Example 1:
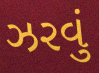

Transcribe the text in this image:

ઝરવું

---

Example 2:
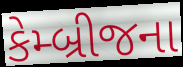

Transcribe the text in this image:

કેમ્બ્રીજના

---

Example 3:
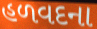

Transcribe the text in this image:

હળવદના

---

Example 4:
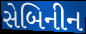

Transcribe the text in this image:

સેબિનીન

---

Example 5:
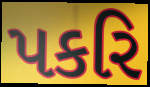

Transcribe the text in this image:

પકરિ